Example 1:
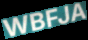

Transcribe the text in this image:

WBFJA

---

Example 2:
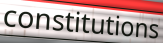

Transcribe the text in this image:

constitutions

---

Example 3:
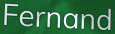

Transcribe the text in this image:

Fernand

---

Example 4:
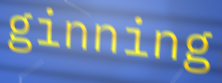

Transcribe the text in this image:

ginning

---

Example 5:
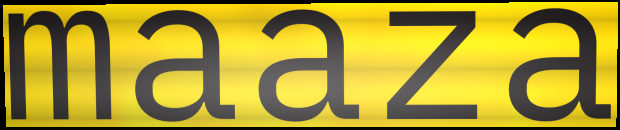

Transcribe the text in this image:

maaza